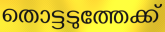
തൊട്ടടുത്തേക്ക്